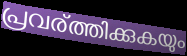
പ്രവര്ത്തിക്കുകയും